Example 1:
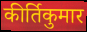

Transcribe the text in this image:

कीर्तिकुमार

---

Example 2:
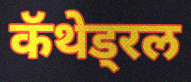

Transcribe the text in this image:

कॅथेड्रल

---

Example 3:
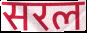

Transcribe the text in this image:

सरल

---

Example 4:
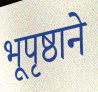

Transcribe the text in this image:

भूपृष्ठाने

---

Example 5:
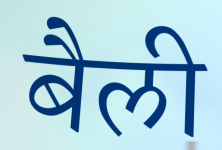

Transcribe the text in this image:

बैली